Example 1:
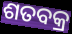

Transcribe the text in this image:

ଶତବକ୍ର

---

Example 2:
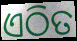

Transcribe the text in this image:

ଏଠିତ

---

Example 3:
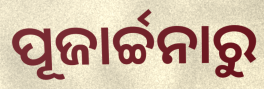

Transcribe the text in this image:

ପୂଜାର୍ଚ୍ଚନାରୁ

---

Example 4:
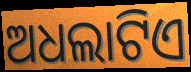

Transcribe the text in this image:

ଅଧଲାଟିଏ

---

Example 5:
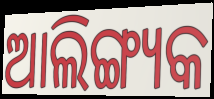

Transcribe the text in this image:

ଆଲିଙ୍ଗ୍ୟକ